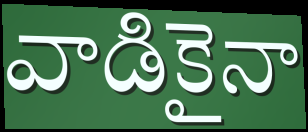
వాడికైనా